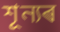
শূন্যৰ